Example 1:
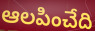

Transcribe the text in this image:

ఆలపించేది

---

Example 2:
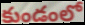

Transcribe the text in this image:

కుండంలో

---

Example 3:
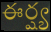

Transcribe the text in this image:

ఈర్ష్య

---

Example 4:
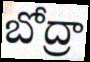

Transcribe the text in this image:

బోద్రా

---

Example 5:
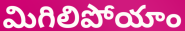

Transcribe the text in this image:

మిగిలిపోయాం